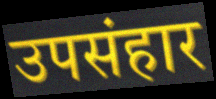
उपसंहार